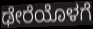
ಢೇರೆಯೊಳಗೆ